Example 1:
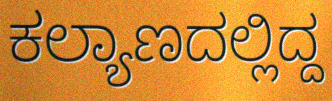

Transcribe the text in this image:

ಕಲ್ಯಾಣದಲ್ಲಿದ್ದ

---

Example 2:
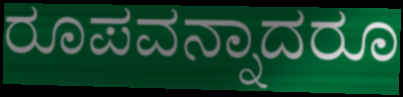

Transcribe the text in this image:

ರೂಪವನ್ನಾದರೂ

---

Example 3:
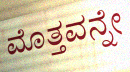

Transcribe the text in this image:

ಮೊತ್ತವನ್ನೇ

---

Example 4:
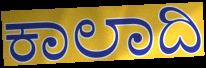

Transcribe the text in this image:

ಕಾಲಾದಿ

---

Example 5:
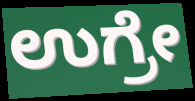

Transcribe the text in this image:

ಉಗ್ರೇ